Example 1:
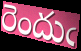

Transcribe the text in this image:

రెందుఁ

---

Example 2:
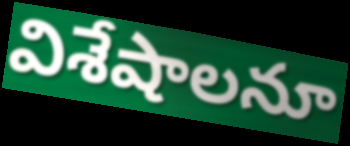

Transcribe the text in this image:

విశేషాలనూ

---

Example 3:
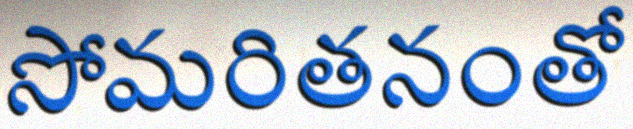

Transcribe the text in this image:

సోమరితనంతో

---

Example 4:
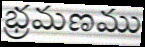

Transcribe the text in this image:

భ్రమణము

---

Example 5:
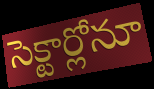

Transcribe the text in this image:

సెక్టార్లోనూ